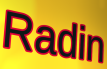
Radin